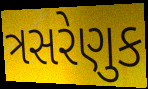
ત્રસરેણુક